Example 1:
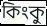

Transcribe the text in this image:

কিংকু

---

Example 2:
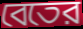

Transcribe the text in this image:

বেতের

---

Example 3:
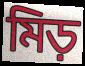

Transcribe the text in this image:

মিড়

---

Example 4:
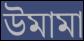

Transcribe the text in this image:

উমামা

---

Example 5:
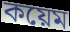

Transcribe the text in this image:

কয়েম